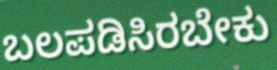
ಬಲಪಡಿಸಿರಬೇಕು